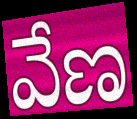
వేణ